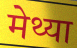
मेथ्या